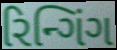
રિન્ગિંગ